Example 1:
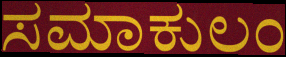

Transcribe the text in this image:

ಸಮಾಕುಲಂ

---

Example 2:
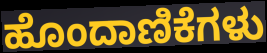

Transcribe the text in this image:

ಹೊಂದಾಣಿಕೆಗಳು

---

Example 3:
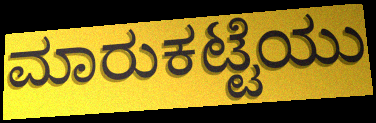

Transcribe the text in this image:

ಮಾರುಕಟ್ಟೆಯು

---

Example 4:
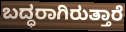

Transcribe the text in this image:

ಬದ್ಧರಾಗಿರುತ್ತಾರೆ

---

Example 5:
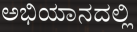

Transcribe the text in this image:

ಅಭಿಯಾನದಲ್ಲಿ